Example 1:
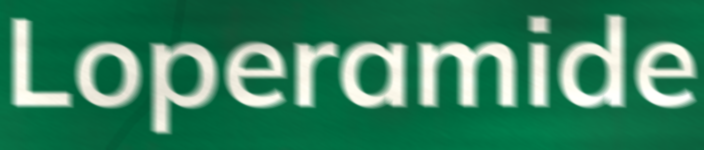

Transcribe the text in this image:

Loperamide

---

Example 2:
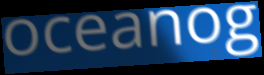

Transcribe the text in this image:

oceanog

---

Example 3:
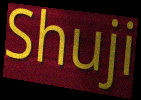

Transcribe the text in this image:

Shuji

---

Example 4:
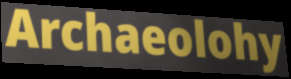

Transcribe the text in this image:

Archaeolohy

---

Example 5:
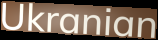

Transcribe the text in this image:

Ukranian